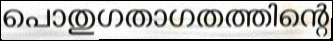
പൊതുഗതാഗതത്തിന്റെ